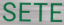
SETE